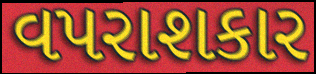
વપરાશકાર